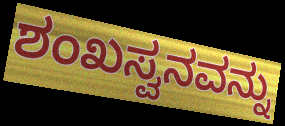
ಶಂಖಸ್ವನವನ್ನು